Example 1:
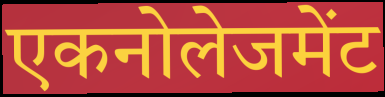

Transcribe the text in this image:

एकनोलेजमेंट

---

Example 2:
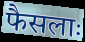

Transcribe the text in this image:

फैसलाः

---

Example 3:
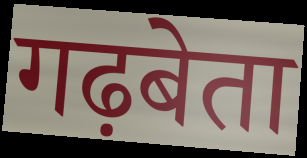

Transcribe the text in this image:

गढ़बेता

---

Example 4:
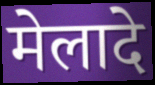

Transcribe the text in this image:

मेलादे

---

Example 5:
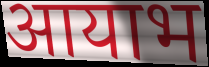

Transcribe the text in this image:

आयाभ